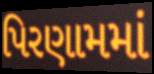
પિરણામમાં